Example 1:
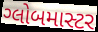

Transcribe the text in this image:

ગ્લોબમાસ્ટર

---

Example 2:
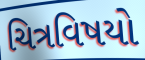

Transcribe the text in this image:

ચિત્રવિષયો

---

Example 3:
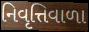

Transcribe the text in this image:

નિવૃત્તિવાળા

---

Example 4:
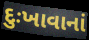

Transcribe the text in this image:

દુઃખાવાનાં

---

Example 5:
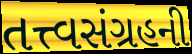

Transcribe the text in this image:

તત્ત્વસંગ્રહની